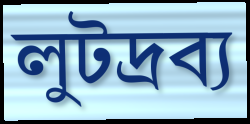
লুটদ্রব্য